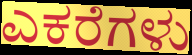
ಎಕರೆಗಳು